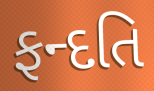
ફન્દતિ